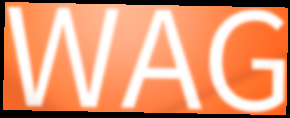
WAG